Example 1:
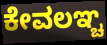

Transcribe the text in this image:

ಕೇವಲಞ್ಚ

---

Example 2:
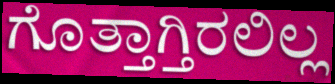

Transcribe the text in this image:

ಗೊತ್ತಾಗ್ತಿರಲಿಲ್ಲ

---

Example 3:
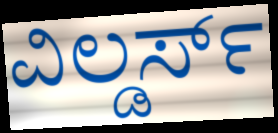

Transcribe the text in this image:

ವಿಲ್ಡರ್ಸ್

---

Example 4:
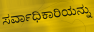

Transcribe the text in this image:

ಸರ್ವಾಧಿಕಾರಿಯನ್ನು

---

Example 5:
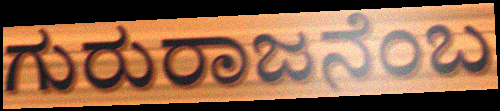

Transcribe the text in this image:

ಗುರುರಾಜನೆಂಬ